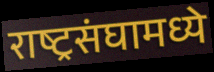
राष्ट्रसंघामध्ये